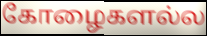
கோழைகளல்ல